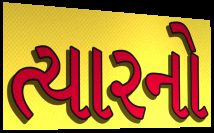
ત્યારનો